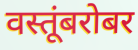
वस्तूंबरोबर